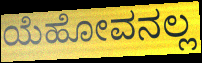
ಯೆಹೋವನಲ್ಲ